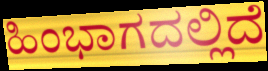
ಹಿಂಭಾಗದಲ್ಲಿದೆ